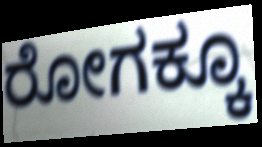
ರೋಗಕ್ಕೂ